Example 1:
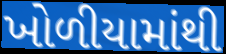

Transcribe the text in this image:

ખોળીયામાંથી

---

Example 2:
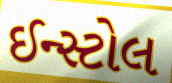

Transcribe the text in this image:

ઈન્સ્ટોલ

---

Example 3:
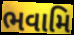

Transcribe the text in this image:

ભવામિ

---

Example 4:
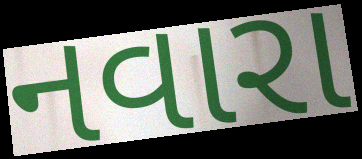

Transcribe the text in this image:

નવારા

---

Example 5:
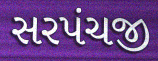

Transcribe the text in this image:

સરપંચજી